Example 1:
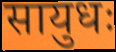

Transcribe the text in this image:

सायुधः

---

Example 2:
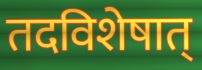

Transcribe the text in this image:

तदविशेषात्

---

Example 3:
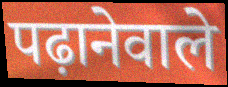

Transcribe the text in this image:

पढ़ानेवाले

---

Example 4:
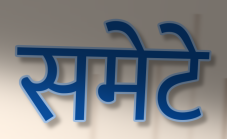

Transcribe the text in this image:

समेटे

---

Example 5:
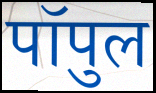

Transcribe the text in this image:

पॉपुल